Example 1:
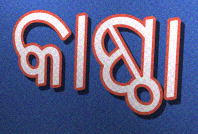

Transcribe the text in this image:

କାଷ୍ଠା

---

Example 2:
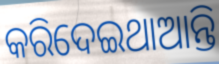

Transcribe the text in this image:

କରିଦେଇଥାଆନ୍ତି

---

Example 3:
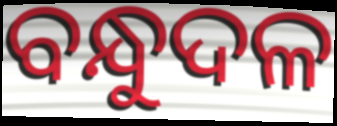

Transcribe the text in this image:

ବନ୍ଧୁଦଳ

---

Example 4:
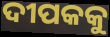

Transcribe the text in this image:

ଦୀପକକୁ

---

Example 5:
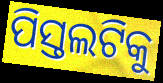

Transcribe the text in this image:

ପିସ୍ତଲଟିକୁ